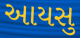
આયસુ